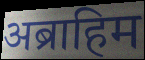
अब्राहिम